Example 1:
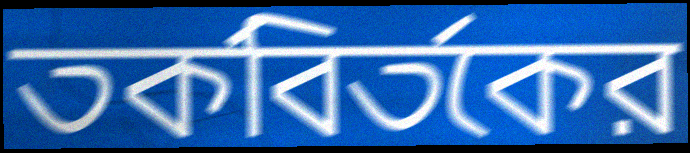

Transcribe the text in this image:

তর্কবির্তকের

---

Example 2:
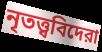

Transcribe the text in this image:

নৃতত্ত্ববিদেরা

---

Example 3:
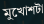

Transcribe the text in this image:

মুখোশটা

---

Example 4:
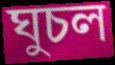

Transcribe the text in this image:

ঘুচল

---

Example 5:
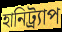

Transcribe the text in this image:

হানিট্র্যাপ